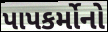
પાપકર્મોનો